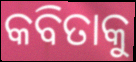
କବିତାକୁ